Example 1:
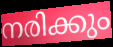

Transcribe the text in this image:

നരിക്കും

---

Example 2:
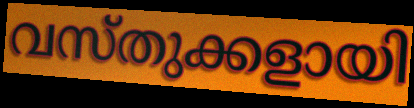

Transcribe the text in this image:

വസ്തുക്കളായി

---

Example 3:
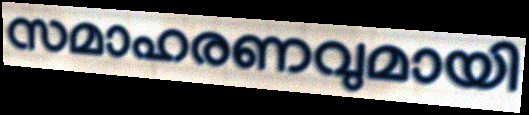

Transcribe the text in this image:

സമാഹരണവുമായി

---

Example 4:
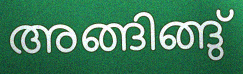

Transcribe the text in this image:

അങ്ങിങ്ങു്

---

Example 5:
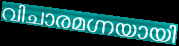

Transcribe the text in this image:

വിചാരമഗ്നയായി